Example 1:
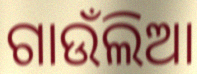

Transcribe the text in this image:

ଗାଉଁଲିଆ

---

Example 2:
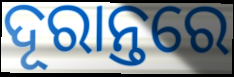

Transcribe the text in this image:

ଦୂରାନ୍ତରେ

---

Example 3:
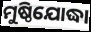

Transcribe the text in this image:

ମୁଷ୍ଠିଯୋଦ୍ଧା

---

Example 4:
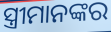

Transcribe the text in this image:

ସ୍ତ୍ରୀମାନଙ୍କର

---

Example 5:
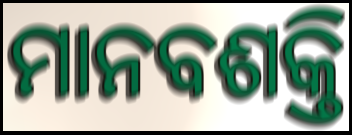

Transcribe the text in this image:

ମାନବଶକ୍ତି